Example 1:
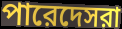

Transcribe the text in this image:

পারেদেসরা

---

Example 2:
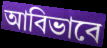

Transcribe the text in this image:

আবিভাবে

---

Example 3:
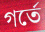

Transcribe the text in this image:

গর্তে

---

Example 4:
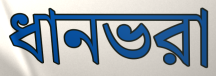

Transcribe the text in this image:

ধানভরা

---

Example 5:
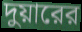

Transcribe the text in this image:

দুয়ারের